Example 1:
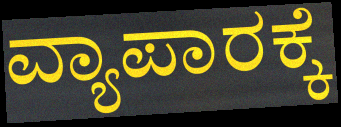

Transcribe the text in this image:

ವ್ಯಾಪಾರಕ್ಕೆ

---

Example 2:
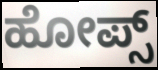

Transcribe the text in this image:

ಹೋಪ್ಸ್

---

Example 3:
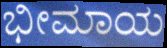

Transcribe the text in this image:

ಭೀಮಾಯ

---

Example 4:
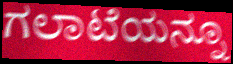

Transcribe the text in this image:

ಗಲಾಟೆಯನ್ನೂ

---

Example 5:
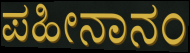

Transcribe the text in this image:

ಪಹೀನಾನಂ